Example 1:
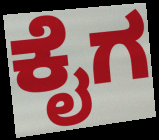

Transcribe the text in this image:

ಕೈಗ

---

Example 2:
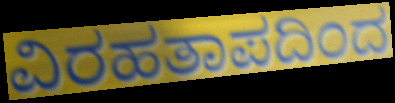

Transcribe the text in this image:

ವಿರಹತಾಪದಿಂದ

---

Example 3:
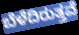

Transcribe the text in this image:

ಬೆಳೆದಿರುತ್ತವೆ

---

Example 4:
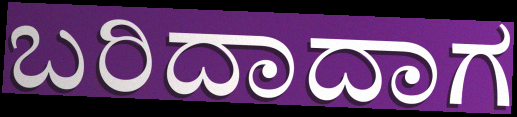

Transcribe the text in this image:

ಬರಿದಾದಾಗ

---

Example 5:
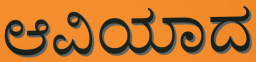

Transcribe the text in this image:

ಆವಿಯಾದ